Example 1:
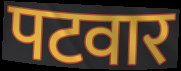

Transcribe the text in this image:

पटवार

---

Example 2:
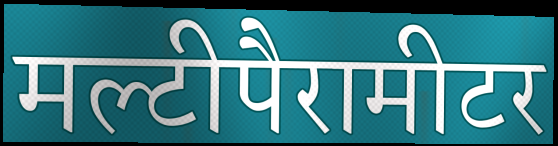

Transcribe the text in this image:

मल्टीपैरामीटर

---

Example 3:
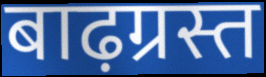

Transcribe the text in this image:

बाढ़ग्रस्त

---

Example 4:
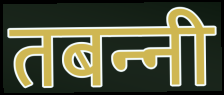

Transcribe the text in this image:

तबन्नी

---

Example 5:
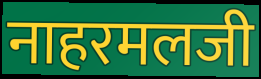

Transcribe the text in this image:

नाहरमलजी